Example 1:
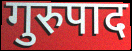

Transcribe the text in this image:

गुरुपाद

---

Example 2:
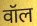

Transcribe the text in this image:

वॉल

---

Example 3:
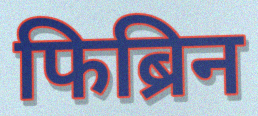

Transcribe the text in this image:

फिब्रिन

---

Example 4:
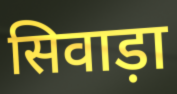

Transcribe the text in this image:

सिवाड़ा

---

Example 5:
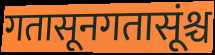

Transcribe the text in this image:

गतासूनगतासूंश्च